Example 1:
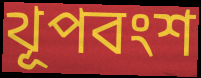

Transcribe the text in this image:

থূপবংশ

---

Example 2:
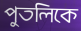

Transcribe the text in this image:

পুতলিকে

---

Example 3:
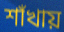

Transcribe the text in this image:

শাঁখায়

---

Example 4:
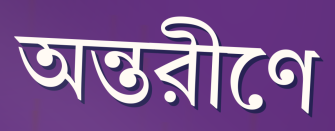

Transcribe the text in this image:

অন্তরীণে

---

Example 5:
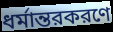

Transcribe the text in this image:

ধর্মান্তরকরণে